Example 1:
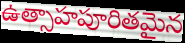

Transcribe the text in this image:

ఉత్సాహపూరితమైన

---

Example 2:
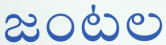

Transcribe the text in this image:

జంటల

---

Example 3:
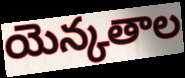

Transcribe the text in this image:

యెన్కతాల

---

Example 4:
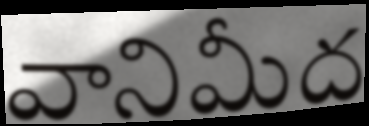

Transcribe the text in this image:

వానిమీద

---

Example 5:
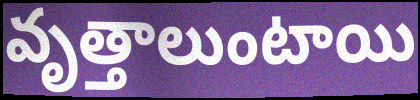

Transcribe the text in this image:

వృత్తాలుంటాయి